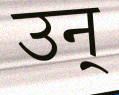
उन्